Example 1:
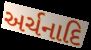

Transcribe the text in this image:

અર્ચનાદિ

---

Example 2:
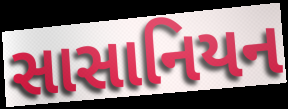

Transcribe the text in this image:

સાસાનિયન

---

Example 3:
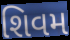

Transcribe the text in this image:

શિવમ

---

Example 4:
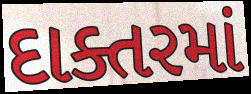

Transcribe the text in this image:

દાક્તરમાં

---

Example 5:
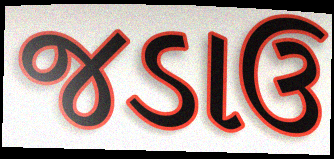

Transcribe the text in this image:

જડાઉ